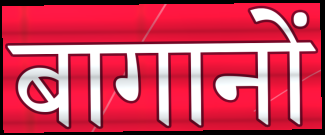
बागानों